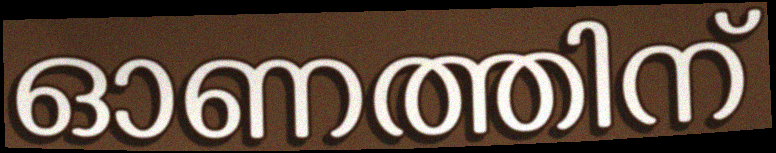
ഓണത്തിന്